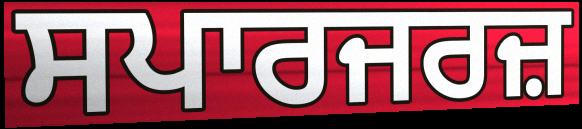
ਸਪਾਰਜਰਜ਼